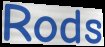
Rods